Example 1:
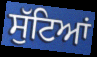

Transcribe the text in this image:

ਸੁੱਟਿਆਂ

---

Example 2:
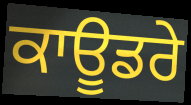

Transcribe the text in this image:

ਕਾਊਡਰੇ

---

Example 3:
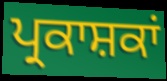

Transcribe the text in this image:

ਪ੍ਰਕਾਸ਼ਕਾਂ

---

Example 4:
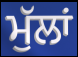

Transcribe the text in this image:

ਮੁੱਲਾਂ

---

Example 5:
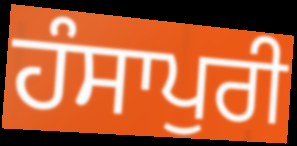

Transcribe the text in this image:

ਹੰਸਾਪੁਰੀ